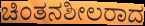
ಚಿಂತನಶೀಲರಾದ